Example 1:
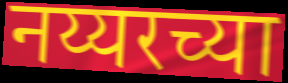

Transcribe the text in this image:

नय्यरच्या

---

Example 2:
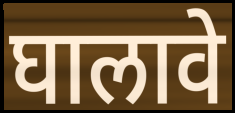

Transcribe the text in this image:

घालावे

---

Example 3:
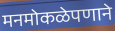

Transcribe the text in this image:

मनमोकळेपणाने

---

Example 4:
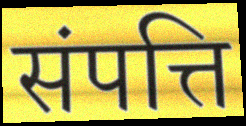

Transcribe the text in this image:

संपत्ति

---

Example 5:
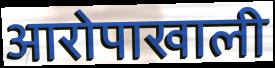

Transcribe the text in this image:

आरोपाखाली